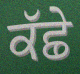
ਕੱਛੇ